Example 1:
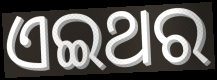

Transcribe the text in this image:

ଏଇଥର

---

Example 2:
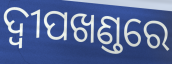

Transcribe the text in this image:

ଦ୍ଵୀପଖଣ୍ଡରେ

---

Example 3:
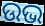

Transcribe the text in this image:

ଉଭ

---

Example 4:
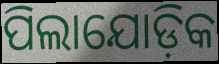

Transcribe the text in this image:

ପିଲାଯୋଡ଼ିକ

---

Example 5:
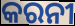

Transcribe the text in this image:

କରନୀ